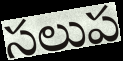
సలుప